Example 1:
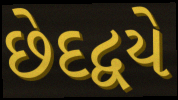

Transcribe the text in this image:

છેદદ્વયે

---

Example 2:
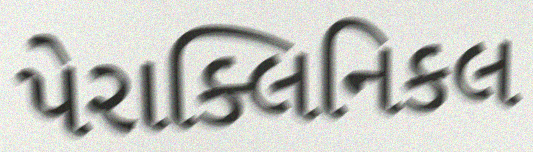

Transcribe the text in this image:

પેરાક્લિનિકલ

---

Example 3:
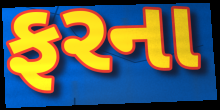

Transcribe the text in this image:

ફરના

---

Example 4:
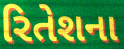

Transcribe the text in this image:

રિતેશના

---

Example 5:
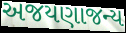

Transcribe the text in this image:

અજયણાજન્ય